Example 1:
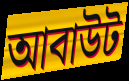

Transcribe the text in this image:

আবাউট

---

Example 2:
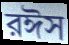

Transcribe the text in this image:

রঈস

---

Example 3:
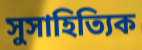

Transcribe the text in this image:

সুসাহিত্যিক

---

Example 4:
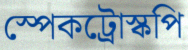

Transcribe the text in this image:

স্পেকট্রোস্কপি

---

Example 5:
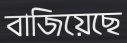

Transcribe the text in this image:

বাজিয়েছে